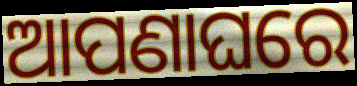
ଆପଣାଘରେ